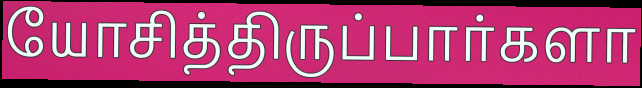
யோசித்திருப்பார்களா